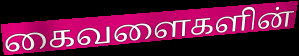
கைவளைகளின்